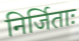
निर्जिताः